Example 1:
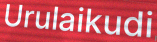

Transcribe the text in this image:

Urulaikudi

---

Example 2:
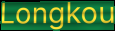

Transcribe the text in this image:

Longkou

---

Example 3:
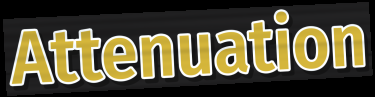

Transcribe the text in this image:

Attenuation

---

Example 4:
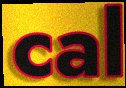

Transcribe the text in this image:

cal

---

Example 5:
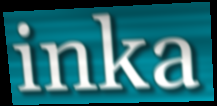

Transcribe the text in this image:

inka